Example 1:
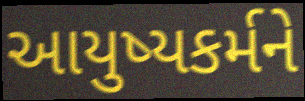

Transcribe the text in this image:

આયુષ્યકર્મને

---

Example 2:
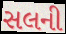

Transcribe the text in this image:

સલની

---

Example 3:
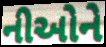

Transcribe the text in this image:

નીઓને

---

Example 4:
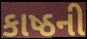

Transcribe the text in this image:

કાષ્ઠની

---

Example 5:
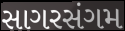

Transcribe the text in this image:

સાગરસંગમ